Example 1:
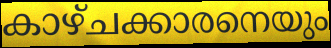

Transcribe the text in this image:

കാഴ്ചക്കാരനെയും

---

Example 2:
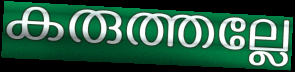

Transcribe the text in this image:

കരുത്തല്ലേ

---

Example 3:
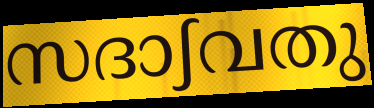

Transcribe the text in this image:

സദാഽവതു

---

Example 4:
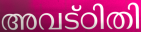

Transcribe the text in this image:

അവട്ഠിതി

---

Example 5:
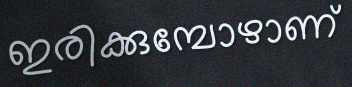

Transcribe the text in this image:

ഇരിക്കുമ്പോഴാണ്